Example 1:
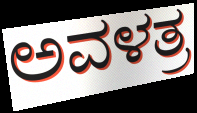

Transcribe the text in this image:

ಅವಳತ್ರ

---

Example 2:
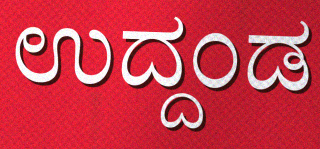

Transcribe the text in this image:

ಉದ್ದಂಡ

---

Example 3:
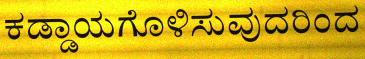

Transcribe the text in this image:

ಕಡ್ಡಾಯಗೊಳಿಸುವುದರಿಂದ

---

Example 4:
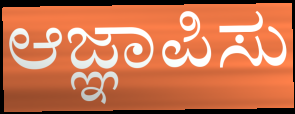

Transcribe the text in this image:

ಆಜ್ಞಾಪಿಸು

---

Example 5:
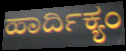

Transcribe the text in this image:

ಹಾರ್ದಿಕ್ಯಂ